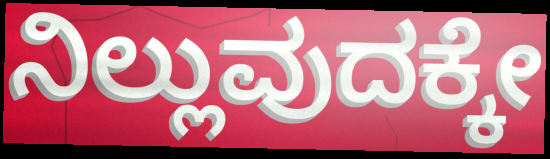
ನಿಲ್ಲುವುದಕ್ಕೇ